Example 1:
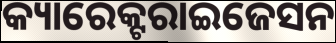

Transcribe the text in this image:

କ୍ୟାରେକ୍ଟରାଇଜେସନ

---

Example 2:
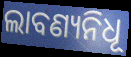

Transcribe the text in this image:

ଲାବଣ୍ୟନିଧୂ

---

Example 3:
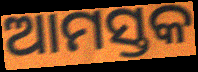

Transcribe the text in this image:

ଆମସ୍ତକ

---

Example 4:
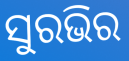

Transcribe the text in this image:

ସୁରଭିର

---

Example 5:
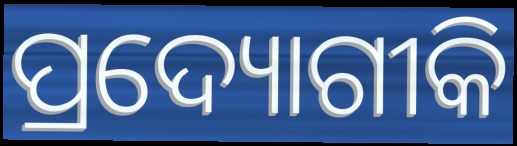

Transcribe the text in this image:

ପ୍ରଦ୍ୟୋଗୀକି